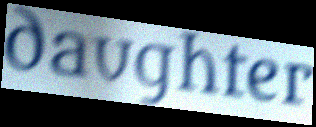
daughter